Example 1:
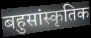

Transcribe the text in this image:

बहुसांस्कृतिक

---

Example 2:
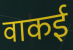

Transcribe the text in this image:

वाकई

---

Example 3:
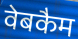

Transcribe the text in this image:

वेबकैम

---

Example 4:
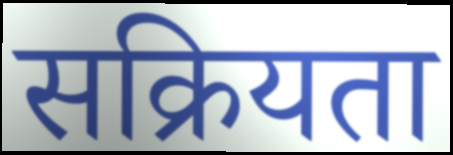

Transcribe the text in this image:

सक्रियता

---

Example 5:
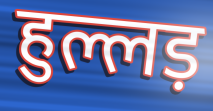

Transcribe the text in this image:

हुल्लड़